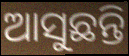
ଆସୁଛନ୍ତି